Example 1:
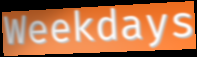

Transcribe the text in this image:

Weekdays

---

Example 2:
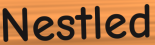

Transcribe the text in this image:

Nestled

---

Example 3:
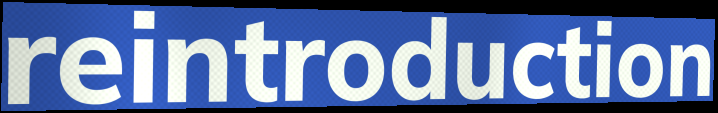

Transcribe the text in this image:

reintroduction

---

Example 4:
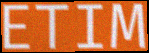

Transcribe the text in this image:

ETIM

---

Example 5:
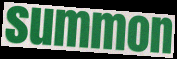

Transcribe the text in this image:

summon